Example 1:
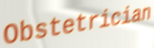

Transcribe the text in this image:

Obstetrician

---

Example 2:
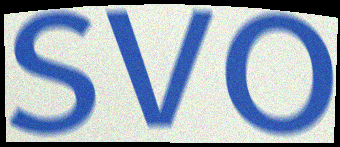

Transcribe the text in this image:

svo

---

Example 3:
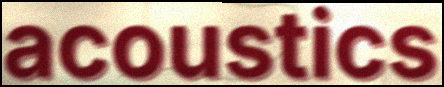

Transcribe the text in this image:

acoustics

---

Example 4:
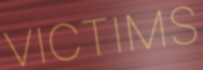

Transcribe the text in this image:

VICTIMS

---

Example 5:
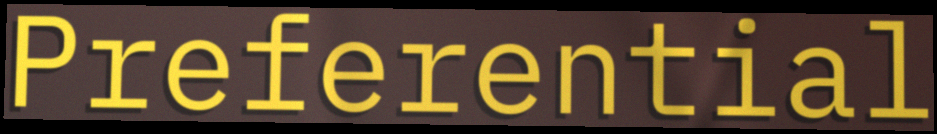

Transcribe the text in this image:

Preferential